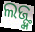
ଲଜ୍ଙ୍କ